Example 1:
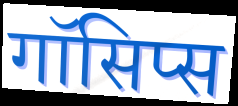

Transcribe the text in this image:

गॉसिप्स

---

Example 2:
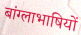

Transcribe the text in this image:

बांग्लाभाषियों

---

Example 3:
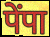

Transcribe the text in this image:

पेंपा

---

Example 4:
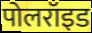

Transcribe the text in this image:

पोलरॉइड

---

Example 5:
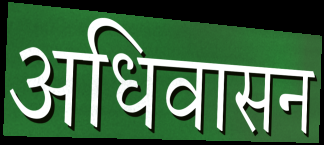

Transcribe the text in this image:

अधिवासन